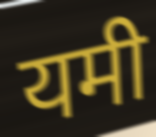
यमी